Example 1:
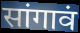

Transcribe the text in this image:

सांगावं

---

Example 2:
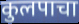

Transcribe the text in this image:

कुलपाचा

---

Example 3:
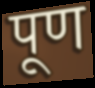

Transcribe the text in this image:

पूण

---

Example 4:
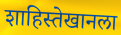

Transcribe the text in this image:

शाहिस्तेखानला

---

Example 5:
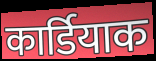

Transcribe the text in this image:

कार्डियाक